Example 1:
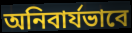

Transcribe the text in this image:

অনিবার্যভাবে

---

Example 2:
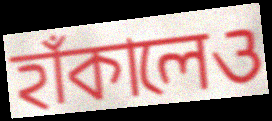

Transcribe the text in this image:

হাঁকালেও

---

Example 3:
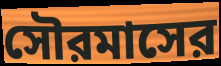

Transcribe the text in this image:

সৌরমাসের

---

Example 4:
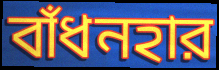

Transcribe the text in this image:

বাঁধনহার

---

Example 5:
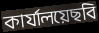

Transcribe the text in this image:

কার্যালয়েছবি